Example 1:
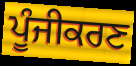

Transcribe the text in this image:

ਪੂੰਜੀਕਰਣ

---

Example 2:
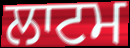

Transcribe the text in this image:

ਲਾਟਮ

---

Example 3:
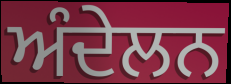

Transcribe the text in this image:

ਅੰਦੇਲਨ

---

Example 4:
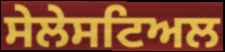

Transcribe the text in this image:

ਸੇਲੇਸਟਿਅਲ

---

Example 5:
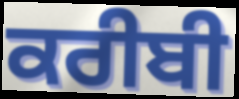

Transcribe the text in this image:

ਕਰੀਬੀ